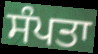
ਸੰਪਤਾ